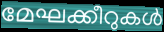
മേഘക്കീറുകൾ